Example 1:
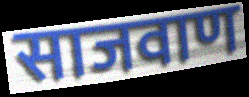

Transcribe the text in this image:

साजवाण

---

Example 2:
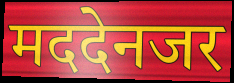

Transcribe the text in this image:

मददेनजर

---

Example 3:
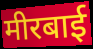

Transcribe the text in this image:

मीरबाई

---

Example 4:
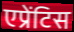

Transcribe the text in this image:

एप्रेंटिस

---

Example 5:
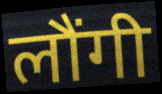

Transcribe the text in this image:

लौंगी